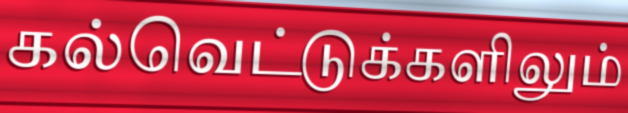
கல்வெட்டுக்களிலும்